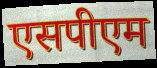
एसपीएम